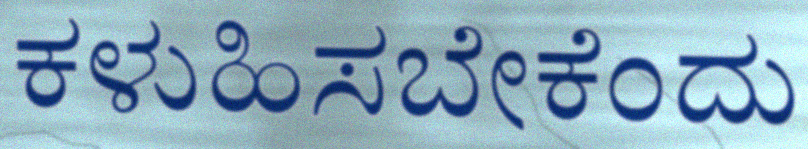
ಕಳುಹಿಸಬೇಕೆಂದು